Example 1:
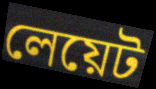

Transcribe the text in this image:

লেয়েট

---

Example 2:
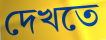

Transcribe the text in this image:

দেখতে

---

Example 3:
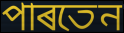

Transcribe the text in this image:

পাৰতেন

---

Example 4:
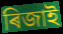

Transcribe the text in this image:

ৰিজাই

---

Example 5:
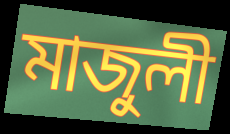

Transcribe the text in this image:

মাজুলী